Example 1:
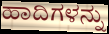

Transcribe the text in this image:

ಹಾದಿಗಳನ್ನು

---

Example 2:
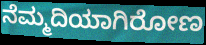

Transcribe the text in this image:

ನೆಮ್ಮದಿಯಾಗಿರೋಣ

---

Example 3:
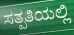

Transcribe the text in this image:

ಸತ್ಪತಿಯಲ್ಲಿ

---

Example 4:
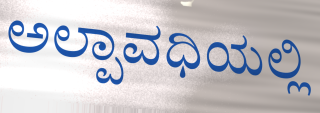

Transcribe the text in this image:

ಅಲ್ಪಾವಧಿಯಲ್ಲಿ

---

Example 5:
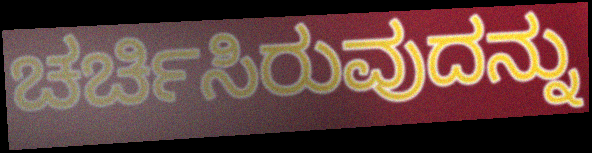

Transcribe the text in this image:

ಚರ್ಚಿಸಿರುವುದನ್ನು